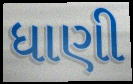
ધાણી